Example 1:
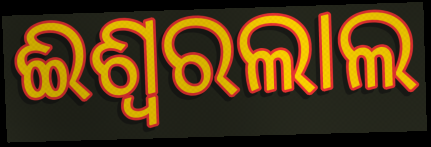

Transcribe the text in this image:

ଈଶ୍ଵରଲାଲ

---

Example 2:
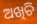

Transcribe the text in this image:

ଅଖିଚି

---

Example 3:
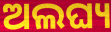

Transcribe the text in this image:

ଅଲଘ୍ୟ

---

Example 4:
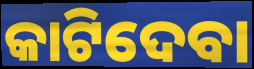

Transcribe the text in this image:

କାଟିଦେବା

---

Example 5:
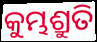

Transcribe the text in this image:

କୁମ୍ଭଶ୍ରୁତି